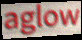
aglow